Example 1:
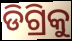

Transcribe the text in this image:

ଡିଗ୍ରିକୁ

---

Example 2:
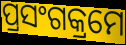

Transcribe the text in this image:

ପ୍ରସଂଗକ୍ରମେ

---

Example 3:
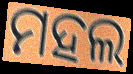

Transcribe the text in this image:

ମହଲ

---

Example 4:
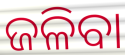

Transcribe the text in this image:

ଜଳିବା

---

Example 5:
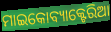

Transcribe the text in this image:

ମାଇକୋବ୍ୟାକ୍ଟେରିଆ